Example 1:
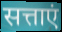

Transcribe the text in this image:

सत्ताएं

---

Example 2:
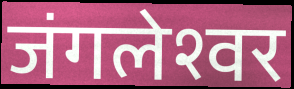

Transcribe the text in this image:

जंगलेश्वर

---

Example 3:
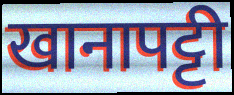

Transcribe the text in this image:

खानापट्टी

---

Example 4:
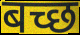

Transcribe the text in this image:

बच्छ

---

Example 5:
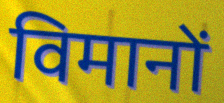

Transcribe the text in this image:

विमानों